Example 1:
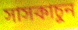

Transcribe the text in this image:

সাসকাচুন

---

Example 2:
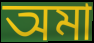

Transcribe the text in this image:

অমা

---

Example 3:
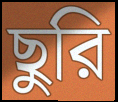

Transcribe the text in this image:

ছুরি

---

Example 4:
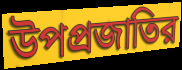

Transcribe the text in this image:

উপপ্রজাতির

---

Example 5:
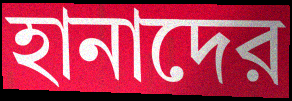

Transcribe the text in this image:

হানাদের